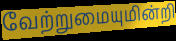
வேற்றுமையுமின்றி